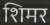
शिमर